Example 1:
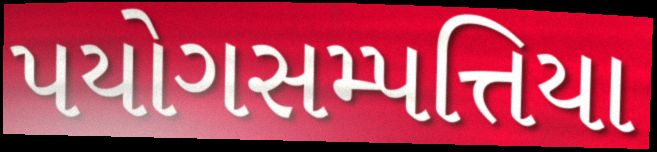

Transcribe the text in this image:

પયોગસમ્પત્તિયા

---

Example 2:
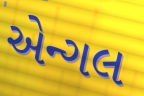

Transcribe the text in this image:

એન્ગલ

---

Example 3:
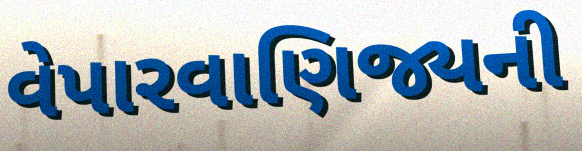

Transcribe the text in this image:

વેપારવાણિજ્યની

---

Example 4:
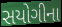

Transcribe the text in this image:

સયોગીના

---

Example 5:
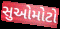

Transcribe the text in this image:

સુઓમોટો